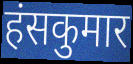
हंसकुमार